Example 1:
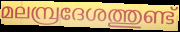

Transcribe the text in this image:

മലമ്പ്രദേശത്തുണ്ട്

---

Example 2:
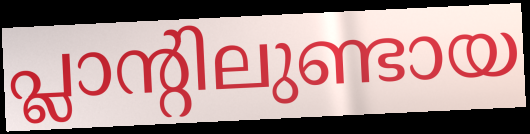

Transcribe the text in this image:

പ്ലാന്റിലുണ്ടായ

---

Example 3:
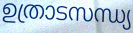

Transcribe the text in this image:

ഉത്രാടസന്ധ്യ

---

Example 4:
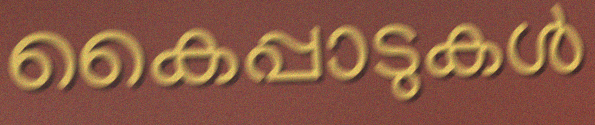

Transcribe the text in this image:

കൈപ്പാടുകൾ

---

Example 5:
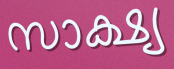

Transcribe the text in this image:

സാക്ഷ്യ